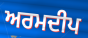
ਅਰਮਦੀਪ